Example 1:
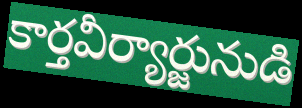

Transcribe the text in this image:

కార్తవీర్యార్జునుడి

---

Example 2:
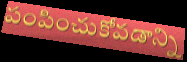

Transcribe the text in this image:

పంపించుకోవడాన్ని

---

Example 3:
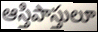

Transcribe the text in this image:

ఆస్తిపాస్తులూ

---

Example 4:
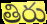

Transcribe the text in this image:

తిరు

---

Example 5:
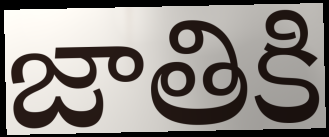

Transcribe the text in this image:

జాతికి